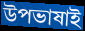
উপভাষাই